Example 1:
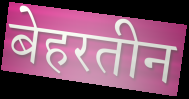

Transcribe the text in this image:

बेहरतीन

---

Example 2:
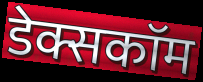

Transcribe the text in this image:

डेक्सकॉम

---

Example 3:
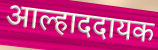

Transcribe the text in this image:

आल्हाददायक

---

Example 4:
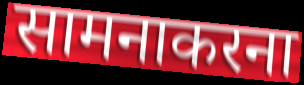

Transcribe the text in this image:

सामनाकरना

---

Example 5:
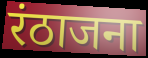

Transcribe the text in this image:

रंठाजना